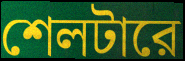
শেলটারে